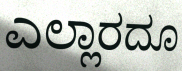
ಎಲ್ಲಾರದೂ